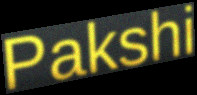
Pakshi